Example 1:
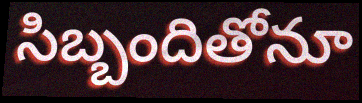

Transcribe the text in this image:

సిబ్బందితోనూ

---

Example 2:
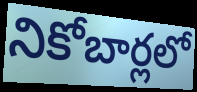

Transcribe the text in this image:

నికోబార్లలో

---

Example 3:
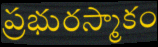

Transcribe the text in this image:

ప్రభురస్మాకం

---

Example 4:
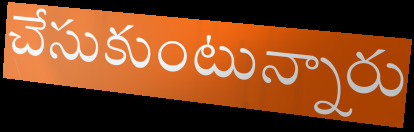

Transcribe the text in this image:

చేసుకుంటున్నారు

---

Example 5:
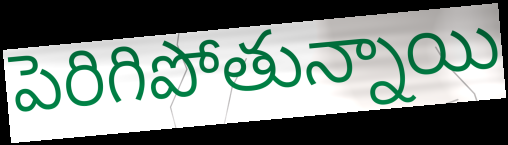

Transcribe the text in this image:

పెరిగిపోతున్నాయి